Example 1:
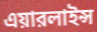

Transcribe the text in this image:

এয়ারলাইন্স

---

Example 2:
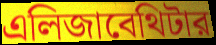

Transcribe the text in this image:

এলিজাবেথিটার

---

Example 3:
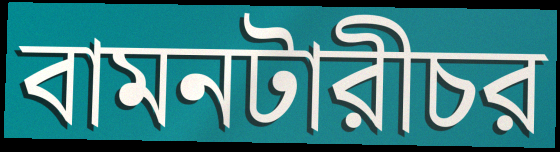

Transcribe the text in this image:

বামনটারীচর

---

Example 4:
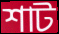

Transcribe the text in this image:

শাট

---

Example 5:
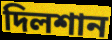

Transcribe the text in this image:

দিলশান